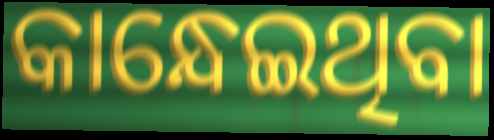
କାନ୍ଧେଇଥିବା